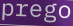
prego